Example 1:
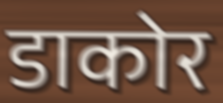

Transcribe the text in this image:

डाकोर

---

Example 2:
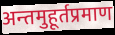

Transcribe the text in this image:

अन्तमुहूर्तप्रमाण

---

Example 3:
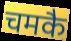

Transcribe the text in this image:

चमकै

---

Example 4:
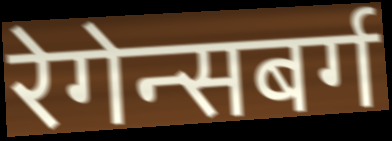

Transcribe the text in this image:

रेगेन्सबर्ग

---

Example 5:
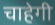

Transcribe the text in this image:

चाहेगी